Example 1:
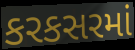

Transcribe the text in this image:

કરકસરમાં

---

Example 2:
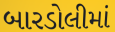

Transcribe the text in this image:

બારડોલીમાં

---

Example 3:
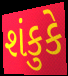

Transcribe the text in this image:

શંકુકે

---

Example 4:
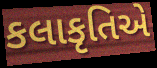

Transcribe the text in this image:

કલાકૃતિએ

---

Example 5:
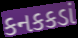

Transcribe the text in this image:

કનકકડાં